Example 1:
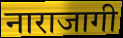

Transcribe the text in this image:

नाराजागी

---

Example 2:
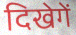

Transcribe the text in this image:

दिखेगें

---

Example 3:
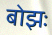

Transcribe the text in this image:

बोझः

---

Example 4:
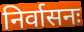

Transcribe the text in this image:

निर्वासनः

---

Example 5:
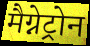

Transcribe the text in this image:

मैग्नेट्रोन